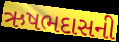
ઋષભદાસની